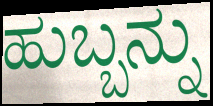
ಹುಬ್ಬನ್ನು